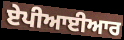
ਏਪੀਆਈਆਰ